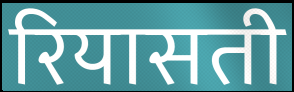
रियासती